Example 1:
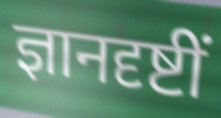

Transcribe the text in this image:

ज्ञानदृष्टीं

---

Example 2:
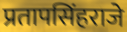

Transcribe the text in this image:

प्रतापसिंहराजे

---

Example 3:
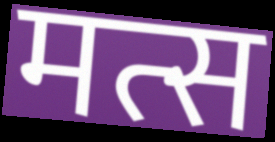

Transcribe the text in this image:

मत्स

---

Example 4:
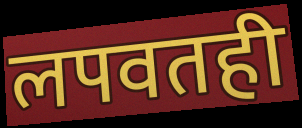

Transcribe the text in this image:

लपवतही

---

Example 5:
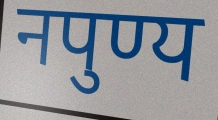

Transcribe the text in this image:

नपुण्य